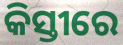
କିସ୍ତୀରେ